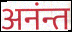
अनंन्त